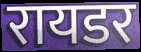
रायडर